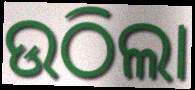
ଉଠିଲା